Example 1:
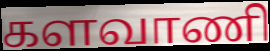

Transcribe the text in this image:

களவாணி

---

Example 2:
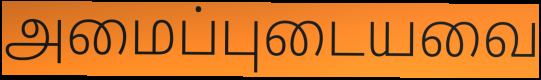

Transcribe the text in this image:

அமைப்புடையவை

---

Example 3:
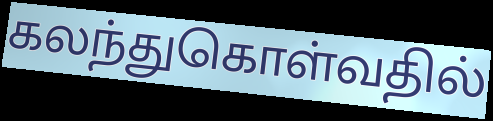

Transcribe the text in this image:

கலந்துகொள்வதில்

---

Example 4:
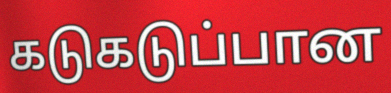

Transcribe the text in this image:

கடுகடுப்பான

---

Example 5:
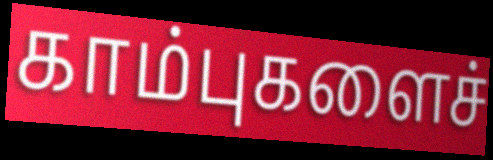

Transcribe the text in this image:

காம்புகளைச்